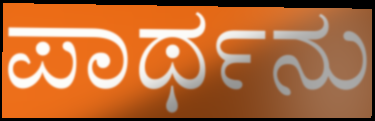
ಪಾರ್ಥನು